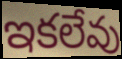
ఇకలేవు